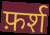
फ़र्श